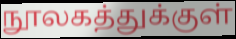
நூலகத்துக்குள்